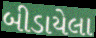
બીડાયેલા